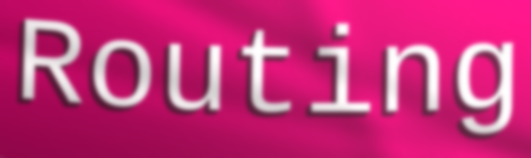
Routing